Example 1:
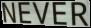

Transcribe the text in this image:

NEVER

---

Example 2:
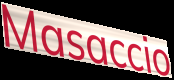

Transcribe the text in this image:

Masaccio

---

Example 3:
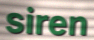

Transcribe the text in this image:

siren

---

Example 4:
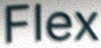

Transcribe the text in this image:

Flex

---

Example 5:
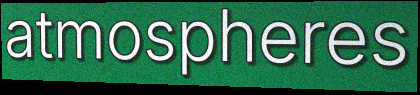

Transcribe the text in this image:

atmospheres